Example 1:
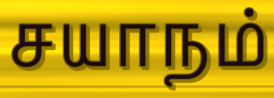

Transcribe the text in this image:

சயாநம்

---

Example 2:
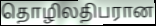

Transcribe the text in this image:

தொழிலதிபரான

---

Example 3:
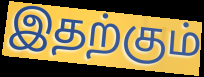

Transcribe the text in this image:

இதற்கும்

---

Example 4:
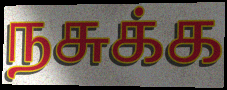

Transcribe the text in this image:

நசுக்க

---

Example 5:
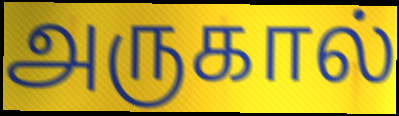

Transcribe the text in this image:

அருகால்